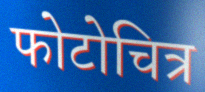
फोटोचित्र